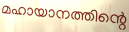
മഹായാനത്തിന്റെ